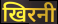
खिरनी